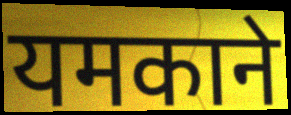
यमकाने